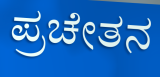
ಪ್ರಚೇತನ